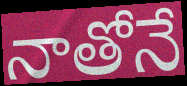
నాతోనే